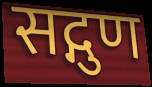
सद्गुण